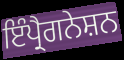
ਇੰਪ੍ਰੈਗਨੇਸ਼ਨ